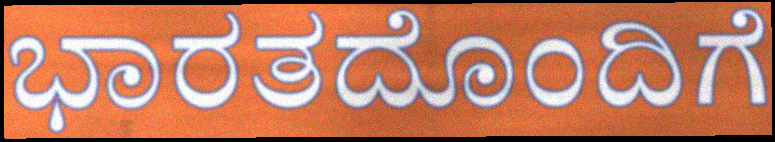
ಭಾರತದೊಂದಿಗೆ